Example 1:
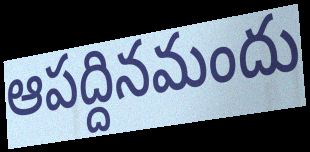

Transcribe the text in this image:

ఆపద్దినమందు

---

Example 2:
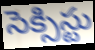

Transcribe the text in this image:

సెక్సిస్టు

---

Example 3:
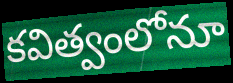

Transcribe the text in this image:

కవిత్వంలోనూ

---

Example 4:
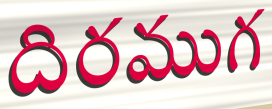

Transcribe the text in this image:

దిరముగ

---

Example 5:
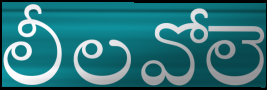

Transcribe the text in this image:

లీలవోలె